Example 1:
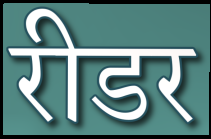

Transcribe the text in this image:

रीडर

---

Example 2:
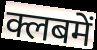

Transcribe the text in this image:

क्लबमें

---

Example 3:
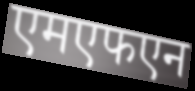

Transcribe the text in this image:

एमएफएन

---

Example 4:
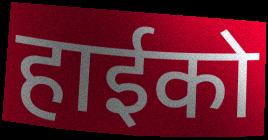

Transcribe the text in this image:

हाईको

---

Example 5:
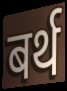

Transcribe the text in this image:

बर्थ